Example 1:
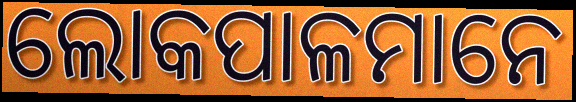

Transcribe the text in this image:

ଲୋକପାଳମାନେ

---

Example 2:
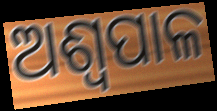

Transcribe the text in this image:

ଅଶ୍ୱପାଳ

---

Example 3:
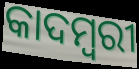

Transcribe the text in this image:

କାଦମ୍ୱରୀ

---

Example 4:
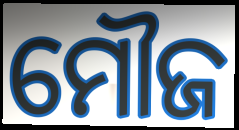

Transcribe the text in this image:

ମୌଜ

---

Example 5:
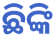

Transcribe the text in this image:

ଛିଙ୍କି